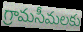
గ్రామసీమలకు